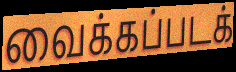
வைக்கப்படக்